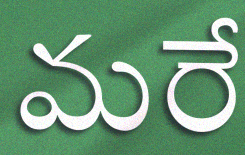
మరే